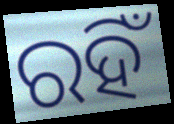
ରହିଁ